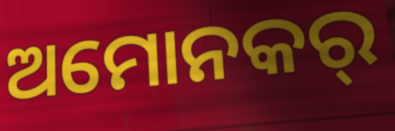
ଅମୋନକର୍